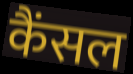
कैंसल